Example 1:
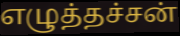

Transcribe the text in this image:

எழுத்தச்சன்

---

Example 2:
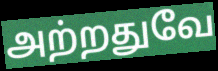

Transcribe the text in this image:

அற்றதுவே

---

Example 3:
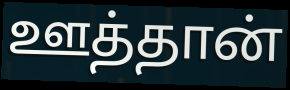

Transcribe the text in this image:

ஊத்தான்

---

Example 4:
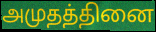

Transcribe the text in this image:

அமுதத்தினை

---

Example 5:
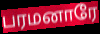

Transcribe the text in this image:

பரமனாரே